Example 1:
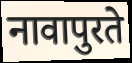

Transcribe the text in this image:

नावापुरते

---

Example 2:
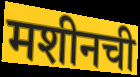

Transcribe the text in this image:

मशीनची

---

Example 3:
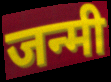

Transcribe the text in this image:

जन्मी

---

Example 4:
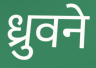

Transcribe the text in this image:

ध्रुवने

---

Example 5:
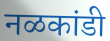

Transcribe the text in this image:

नळकांडी